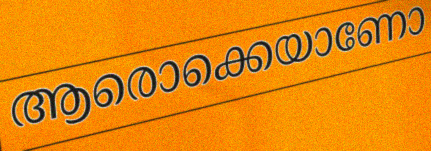
ആരൊക്കെയാണോ